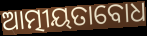
ଆତ୍ମୀୟତାବୋଧ